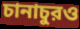
চানাচুরও